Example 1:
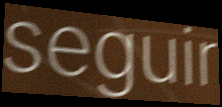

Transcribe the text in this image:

seguir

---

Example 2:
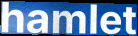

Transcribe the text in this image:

hamlet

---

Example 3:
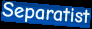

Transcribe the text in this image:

Separatist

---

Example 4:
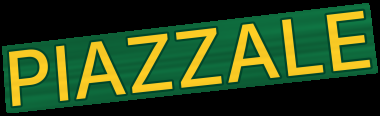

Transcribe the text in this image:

PIAZZALE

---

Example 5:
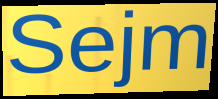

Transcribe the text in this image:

Sejm